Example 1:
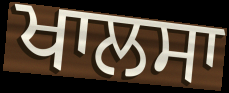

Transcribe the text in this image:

ਖਾਲਸਾ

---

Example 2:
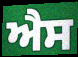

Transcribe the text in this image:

ਐਸ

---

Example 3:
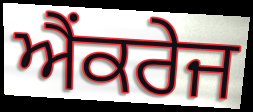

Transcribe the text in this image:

ਐਂਕਰੇਜ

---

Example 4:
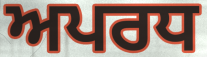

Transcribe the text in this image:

ਅਪਰਧ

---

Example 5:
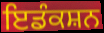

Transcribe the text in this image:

ਇਡੰਕਸ਼ਨ